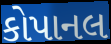
કોપાનલ